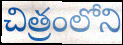
చిత్రంలోని